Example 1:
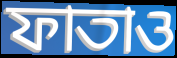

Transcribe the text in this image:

ফাতাও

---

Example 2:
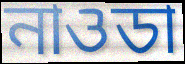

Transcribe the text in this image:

নাওডা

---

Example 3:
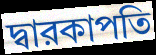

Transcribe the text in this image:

দ্বারকাপতি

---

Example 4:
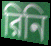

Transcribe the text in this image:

রিনি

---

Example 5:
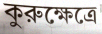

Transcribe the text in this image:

কুরুক্ষেত্রে